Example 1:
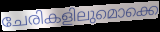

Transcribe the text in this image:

ചേരികളിലുമൊക്കെ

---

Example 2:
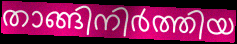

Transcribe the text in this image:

താങ്ങിനിർത്തിയ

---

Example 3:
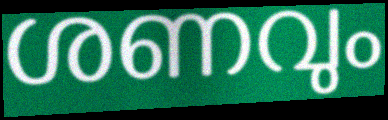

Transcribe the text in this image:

ശണവും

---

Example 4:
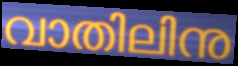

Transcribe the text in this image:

വാതിലിനു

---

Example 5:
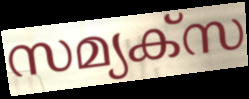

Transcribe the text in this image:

സമ്യക്സ